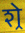
श्रे